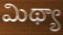
మిథ్యా